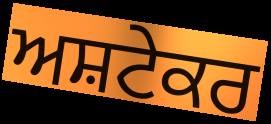
ਅਸ਼ਟੇਕਰ